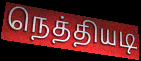
நெத்தியடி